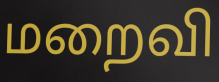
மறைவி